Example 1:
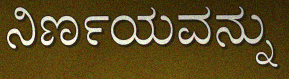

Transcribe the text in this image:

ನಿರ್ಣಯವನ್ನು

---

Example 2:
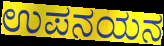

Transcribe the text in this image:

ಉಪನಯನ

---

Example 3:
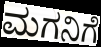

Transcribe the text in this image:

ಮಗನಿಗೆ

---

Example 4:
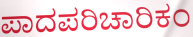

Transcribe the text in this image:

ಪಾದಪರಿಚಾರಿಕಂ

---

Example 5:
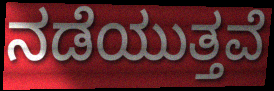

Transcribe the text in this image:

ನಡೆಯುತ್ತವೆ